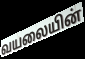
வயலையின்